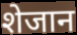
शेजान